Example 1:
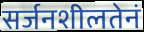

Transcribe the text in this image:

सर्जनशीलतेनं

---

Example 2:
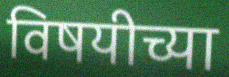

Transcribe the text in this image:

विषयीच्या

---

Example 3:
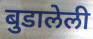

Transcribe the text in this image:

बुडालेली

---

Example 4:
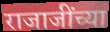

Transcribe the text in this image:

राजाजींच्या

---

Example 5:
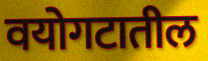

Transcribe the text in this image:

वयोगटातील